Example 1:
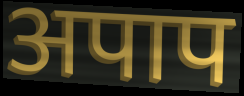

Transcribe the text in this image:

अपाप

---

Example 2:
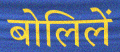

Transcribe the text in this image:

बोलिलें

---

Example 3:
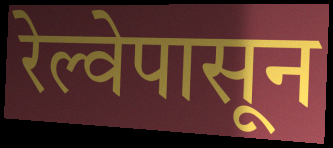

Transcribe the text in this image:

रेल्वेपासून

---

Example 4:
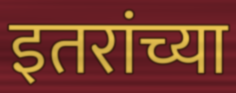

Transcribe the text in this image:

इतरांच्या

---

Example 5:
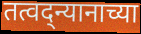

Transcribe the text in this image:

तत्वद्न्यानाच्या